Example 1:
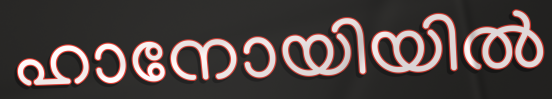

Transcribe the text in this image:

ഹാനോയിയിൽ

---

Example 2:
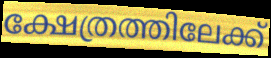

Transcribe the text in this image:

ക്ഷേത്രത്തിലേക്ക്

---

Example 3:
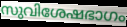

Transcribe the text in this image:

സുവിശേഷഭാഗം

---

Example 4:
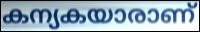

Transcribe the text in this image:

കന്യകയാരാണ്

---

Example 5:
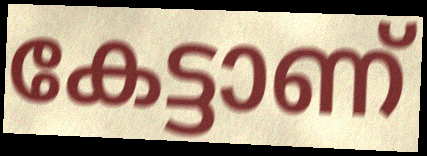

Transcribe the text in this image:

കേട്ടാണ്